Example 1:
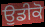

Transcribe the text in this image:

ਉਡੀਕੋ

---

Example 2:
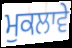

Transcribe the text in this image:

ਮੁਕਲਾਵੇ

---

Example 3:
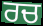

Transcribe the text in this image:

ਰਚ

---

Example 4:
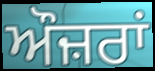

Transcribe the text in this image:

ਔਜ਼ਰਾਂ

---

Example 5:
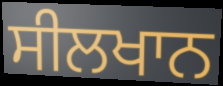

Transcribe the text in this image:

ਸੀਲਖਾਨ